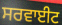
ਸਰਵਾਈਟ